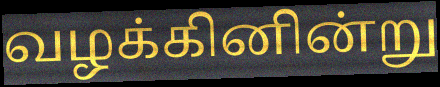
வழக்கினின்று